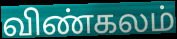
விண்கலம்